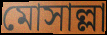
মোসাল্লা